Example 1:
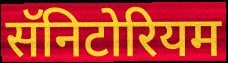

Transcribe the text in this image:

सॅनिटोरियम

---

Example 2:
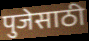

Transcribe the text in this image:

पुजेसाठी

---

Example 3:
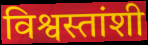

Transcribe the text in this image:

विश्वस्तांशी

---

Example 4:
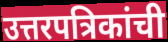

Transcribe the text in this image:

उत्तरपत्रिकांची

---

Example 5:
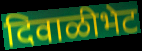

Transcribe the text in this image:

दिवाळीभेट